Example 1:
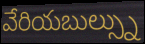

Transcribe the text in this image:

వేరియబుల్స్ను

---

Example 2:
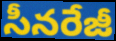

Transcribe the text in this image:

సీనరేజీ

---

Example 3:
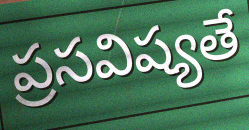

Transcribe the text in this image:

ప్రసవిష్యతే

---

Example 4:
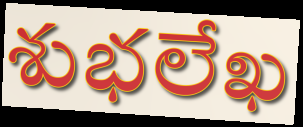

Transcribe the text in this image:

శుభలేఖ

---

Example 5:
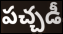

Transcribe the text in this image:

పచ్చడీ